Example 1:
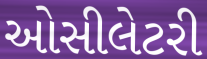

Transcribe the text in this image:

ઓસીલેટરી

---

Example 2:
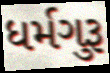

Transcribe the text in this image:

ધર્મગુરૂ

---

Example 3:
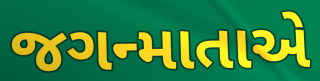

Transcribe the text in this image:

જગન્માતાએ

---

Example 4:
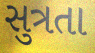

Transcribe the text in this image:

સુત્રતા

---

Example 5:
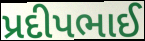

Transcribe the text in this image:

પ્રદીપભાઈ